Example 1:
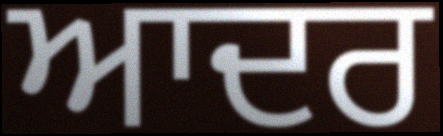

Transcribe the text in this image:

ਆਦਰ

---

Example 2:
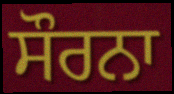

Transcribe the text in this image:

ਸੌਰਨਾ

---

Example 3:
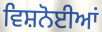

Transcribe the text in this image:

ਵਿਸ਼ਨੋਈਆਂ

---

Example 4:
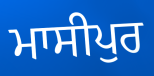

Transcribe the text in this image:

ਮਾਸੀਪੁਰ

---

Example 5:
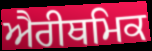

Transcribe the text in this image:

ਐਰੀਥਮਿਕ